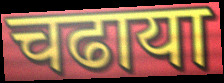
चढाया